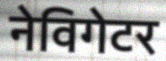
नेविगेटर